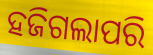
ହଜିଗଲାପରି